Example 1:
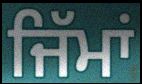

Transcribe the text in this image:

ਜਿੱਮਾਂ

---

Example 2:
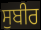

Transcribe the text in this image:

ਸੁਬੀਰ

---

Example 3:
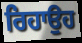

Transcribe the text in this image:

ਰਿਹਾਉਹ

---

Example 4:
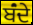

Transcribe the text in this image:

ਬਂੰਦੇ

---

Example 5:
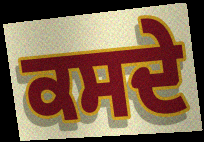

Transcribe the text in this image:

ਕਸਦੇ